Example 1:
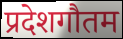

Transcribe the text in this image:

प्रदेशगौतम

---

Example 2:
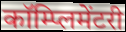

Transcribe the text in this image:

कॉम्प्लिमेंटरी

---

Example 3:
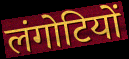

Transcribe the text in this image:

लंगोटियों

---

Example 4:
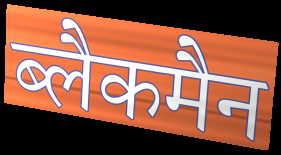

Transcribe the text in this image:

ब्लैकमैन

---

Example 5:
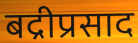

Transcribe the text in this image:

बद्रीप्रसाद